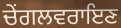
ਚੇਂਗਲਵਰਾਇਣ